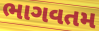
ભાગવતમ